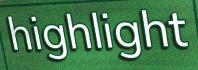
highlight